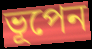
ভূপেন